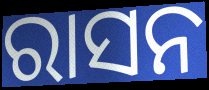
ରାସନ